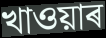
খাওয়াৰ